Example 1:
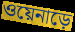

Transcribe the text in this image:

ওয়েনাড়ে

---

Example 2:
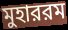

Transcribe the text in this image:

মুহাররম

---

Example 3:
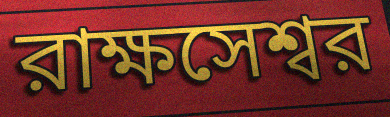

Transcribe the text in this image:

রাক্ষসেশ্বর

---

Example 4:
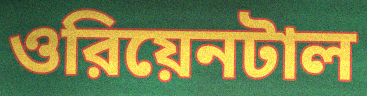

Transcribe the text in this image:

ওরিয়েনটাল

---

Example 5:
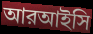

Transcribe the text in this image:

আরআইসি